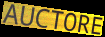
AUCTORE